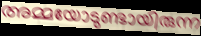
അമ്മയോടുണ്ടായിരുന്ന